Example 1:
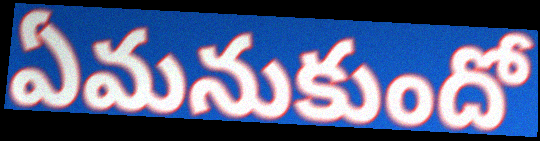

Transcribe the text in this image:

ఏమనుకుందో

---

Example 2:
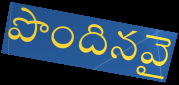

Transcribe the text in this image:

పొందినవై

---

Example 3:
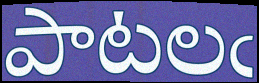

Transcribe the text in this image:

పాటలఁ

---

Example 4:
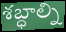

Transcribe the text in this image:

శబ్ధాల్ని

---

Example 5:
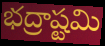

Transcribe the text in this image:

భద్రాష్టమి